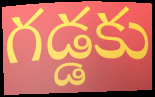
గడ్డకు